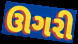
ઊગરી